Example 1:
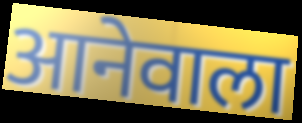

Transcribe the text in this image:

आनेवाला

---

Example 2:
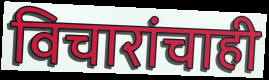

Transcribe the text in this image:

विचारांचाही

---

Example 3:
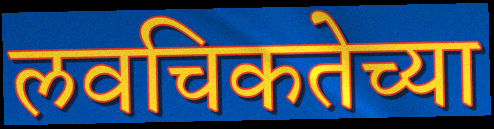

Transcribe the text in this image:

लवचिकतेच्या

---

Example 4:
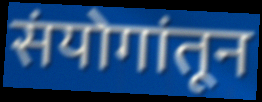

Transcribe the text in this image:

संयोगांतून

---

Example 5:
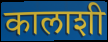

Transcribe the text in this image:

कालाशी